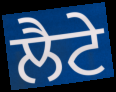
ਲੈਟੇ